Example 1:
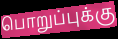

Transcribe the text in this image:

பொறுப்புக்கு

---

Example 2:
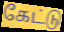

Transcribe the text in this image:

கேட்டு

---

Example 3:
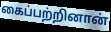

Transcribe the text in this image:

கைப்பற்றினான்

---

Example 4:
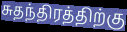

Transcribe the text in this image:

சுதந்திரத்திற்கு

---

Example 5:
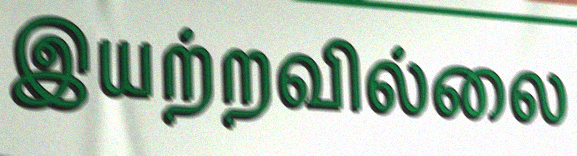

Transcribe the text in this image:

இயற்றவில்லை